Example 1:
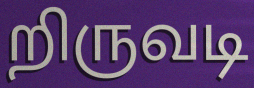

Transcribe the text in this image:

றிருவடி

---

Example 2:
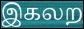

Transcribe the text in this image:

இகலற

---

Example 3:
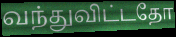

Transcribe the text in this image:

வந்துவிட்டதோ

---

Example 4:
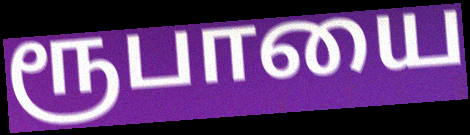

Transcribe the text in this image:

ரூபாயை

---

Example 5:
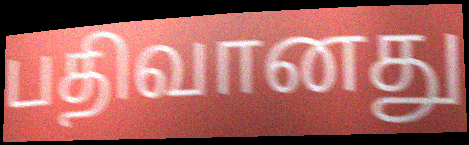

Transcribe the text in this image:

பதிவானது